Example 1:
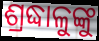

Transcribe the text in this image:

ଶ୍ରଦ୍ଧାଳୁଙ୍କୁ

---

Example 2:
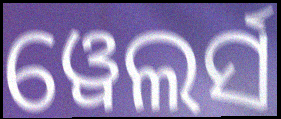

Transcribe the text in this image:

ୱେଲର୍ସ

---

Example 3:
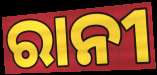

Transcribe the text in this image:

ରାନୀ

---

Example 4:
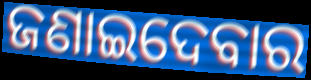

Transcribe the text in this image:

ଜଣାଇଦେବାର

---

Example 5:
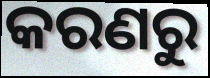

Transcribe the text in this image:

କରଣରୁ